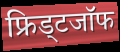
फ्रिड्टजॉफ